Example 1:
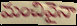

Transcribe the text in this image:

మంచివైనా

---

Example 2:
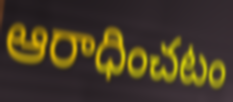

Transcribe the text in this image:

ఆరాధించటం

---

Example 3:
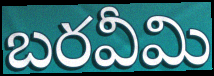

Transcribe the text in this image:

బరవీమి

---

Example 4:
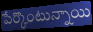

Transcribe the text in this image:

పేర్కొంటున్నాయి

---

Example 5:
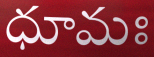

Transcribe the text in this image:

ధూమః